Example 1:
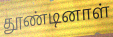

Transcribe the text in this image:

தூண்டினாள்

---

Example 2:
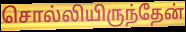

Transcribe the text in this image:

சொல்லியிருந்தேன்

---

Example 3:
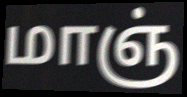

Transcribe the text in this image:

மாஞ்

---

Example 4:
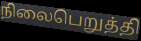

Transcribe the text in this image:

நிலைபெறுத்தி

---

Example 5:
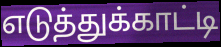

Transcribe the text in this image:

எடுத்துக்காட்டி